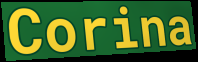
Corina